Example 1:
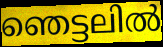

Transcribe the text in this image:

ഞെട്ടലിൽ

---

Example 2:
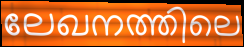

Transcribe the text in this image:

ലേഖനത്തിലെ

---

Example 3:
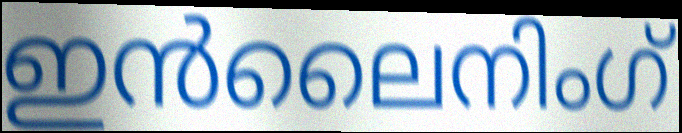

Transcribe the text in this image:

ഇൻലൈനിംഗ്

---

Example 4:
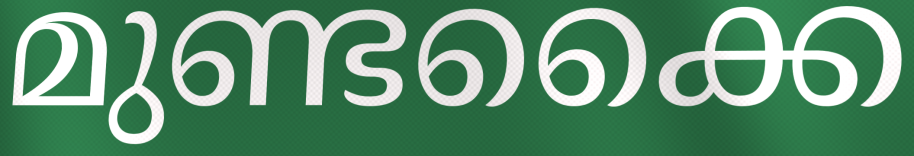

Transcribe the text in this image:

മുണ്ടക്കൈ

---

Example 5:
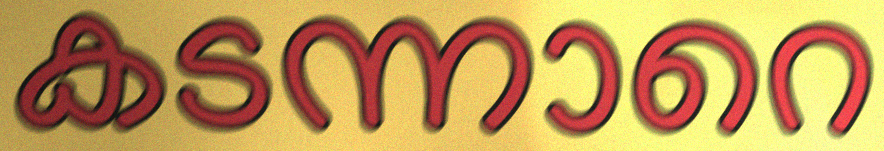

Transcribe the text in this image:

കടന്നാറെ